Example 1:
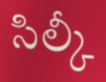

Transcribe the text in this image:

సిల్కీ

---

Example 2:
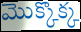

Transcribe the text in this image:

మొక్కొక్క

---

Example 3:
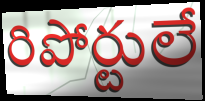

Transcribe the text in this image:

రిపోర్టులే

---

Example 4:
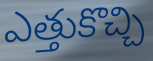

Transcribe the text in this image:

ఎత్తుకొచ్చి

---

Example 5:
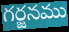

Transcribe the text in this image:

గర్జనము